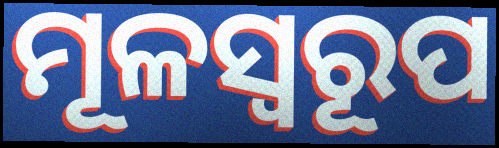
ମୂଳସ୍ୱରୂପ